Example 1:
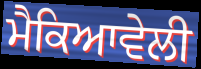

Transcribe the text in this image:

ਮੈਕਿਆਵੇਲੀ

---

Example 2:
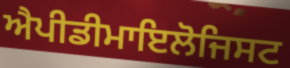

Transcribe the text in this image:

ਐਪੀਡੀਮਾਇਲੋਜਿਸਟ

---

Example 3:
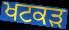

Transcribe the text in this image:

ਖਟਕੜ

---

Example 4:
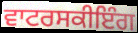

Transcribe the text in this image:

ਵਾਟਰਸਕੀਇੰਗ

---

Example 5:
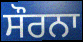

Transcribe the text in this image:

ਸੌਰਨਾ